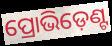
ପ୍ରୋଭିଡ଼େଣ୍ଟ